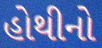
હોથીનો